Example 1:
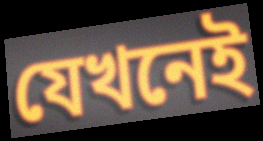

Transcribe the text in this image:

যেখনেই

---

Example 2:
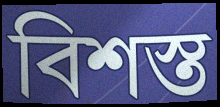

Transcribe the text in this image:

বিশস্ত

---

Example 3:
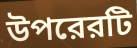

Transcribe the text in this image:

উপরেরটি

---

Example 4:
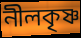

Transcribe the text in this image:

নীলকৃষ্ণ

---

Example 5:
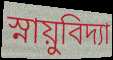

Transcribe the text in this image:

স্নায়ুবিদ্যা